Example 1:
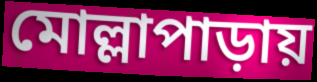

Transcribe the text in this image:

মোল্লাপাড়ায়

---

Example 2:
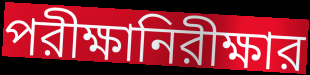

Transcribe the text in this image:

পরীক্ষানিরীক্ষার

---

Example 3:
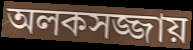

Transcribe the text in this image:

অলকসজ্জায়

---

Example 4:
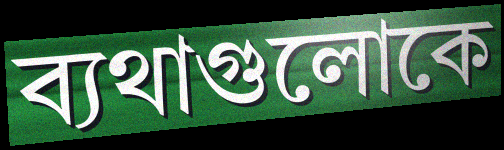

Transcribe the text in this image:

ব্যথাগুলোকে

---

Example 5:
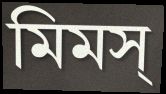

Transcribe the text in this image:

মিমস্